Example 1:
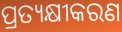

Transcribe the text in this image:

ପ୍ରତ୍ୟକ୍ଷୀକରଣ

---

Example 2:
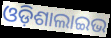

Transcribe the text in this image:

ଓଡ଼ିଶାଲାଇଭ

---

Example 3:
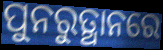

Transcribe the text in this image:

ପୁନରୁତ୍ଥାନରେ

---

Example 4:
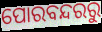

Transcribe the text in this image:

ପୋରବନ୍ଦରରୁ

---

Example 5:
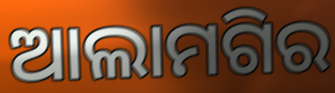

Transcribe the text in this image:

ଆଲାମଗିର